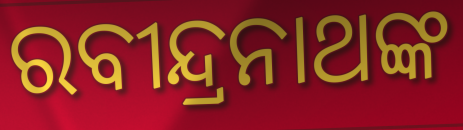
ରବୀନ୍ଦ୍ରନାଥଙ୍କ